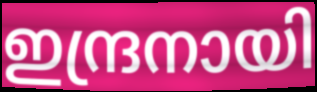
ഇന്ദ്രനായി